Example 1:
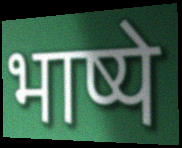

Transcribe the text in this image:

भाष्ये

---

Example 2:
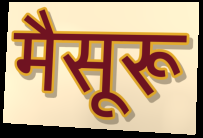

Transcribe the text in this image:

मैसूरू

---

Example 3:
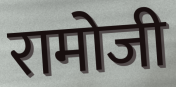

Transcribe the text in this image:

रामोजी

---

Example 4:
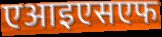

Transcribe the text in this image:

एआइएसएफ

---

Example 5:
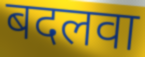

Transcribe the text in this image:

बदलवा